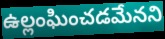
ఉల్లంఘించడమేనని